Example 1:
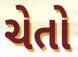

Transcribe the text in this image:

ચેતો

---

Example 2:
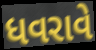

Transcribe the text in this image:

ધવરાવે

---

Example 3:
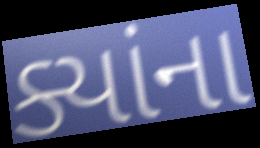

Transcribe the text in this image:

ક્યાંના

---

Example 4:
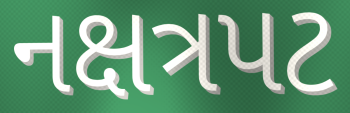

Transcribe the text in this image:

નક્ષત્રપટ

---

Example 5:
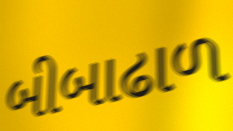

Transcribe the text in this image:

બીબાઢાળ